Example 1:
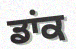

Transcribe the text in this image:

ਡਾਂਕ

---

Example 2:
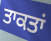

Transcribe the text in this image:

ਤਾਕਤਾਂ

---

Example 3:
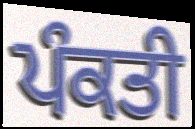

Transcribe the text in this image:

ਪੰਕਤੀ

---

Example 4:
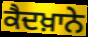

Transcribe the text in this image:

ਕੈਦਖ਼ਾਨੇ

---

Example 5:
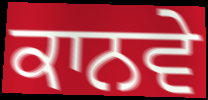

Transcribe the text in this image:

ਕਾਨਵੇ